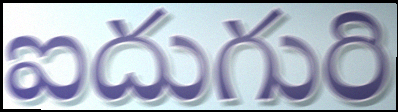
ఐదుగురి